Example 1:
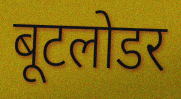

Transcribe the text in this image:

बूटलोडर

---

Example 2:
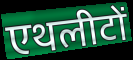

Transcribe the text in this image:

एथलीटों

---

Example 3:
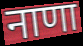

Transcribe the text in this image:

नाणा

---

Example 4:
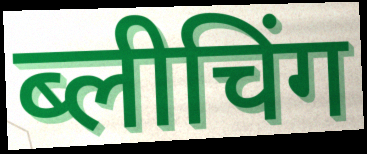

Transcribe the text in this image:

ब्लीचिंग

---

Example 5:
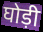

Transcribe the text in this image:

घोड़ी